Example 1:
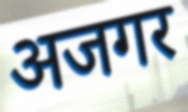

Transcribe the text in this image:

अजगर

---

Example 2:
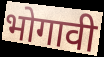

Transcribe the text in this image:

भोगावी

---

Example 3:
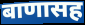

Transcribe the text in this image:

बाणासह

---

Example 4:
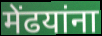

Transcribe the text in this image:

मेंढयांना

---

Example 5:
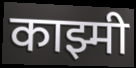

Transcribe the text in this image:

काझ्मी